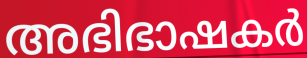
അഭിഭാഷകർ